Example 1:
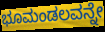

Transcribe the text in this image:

ಭೂಮಂಡಲವನ್ನೇ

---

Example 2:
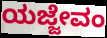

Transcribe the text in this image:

ಯಜ್ಜೇವಂ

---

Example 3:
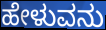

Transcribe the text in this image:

ಹೇಳುವನು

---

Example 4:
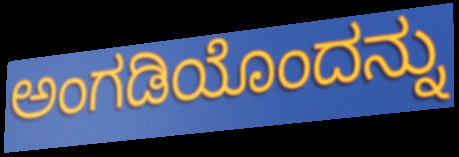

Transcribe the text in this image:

ಅಂಗಡಿಯೊಂದನ್ನು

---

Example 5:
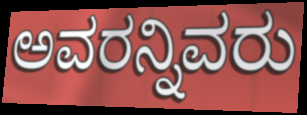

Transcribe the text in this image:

ಅವರನ್ನಿವರು